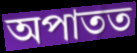
অপাতত